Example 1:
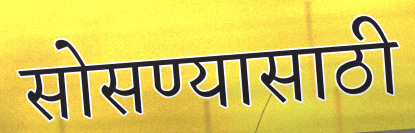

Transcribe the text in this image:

सोसण्यासाठी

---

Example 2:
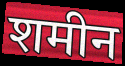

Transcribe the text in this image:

शमीन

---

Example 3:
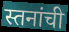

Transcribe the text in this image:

स्तनांची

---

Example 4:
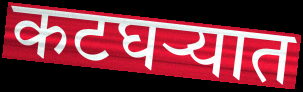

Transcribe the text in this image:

कटघऱ्यात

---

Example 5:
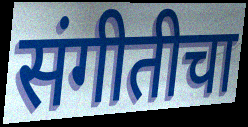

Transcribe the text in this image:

संगीतीचा